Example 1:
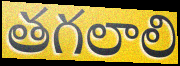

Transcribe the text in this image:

తగలాలి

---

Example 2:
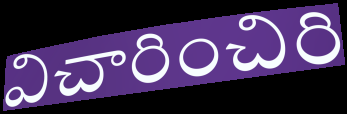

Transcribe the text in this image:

విచారించిరి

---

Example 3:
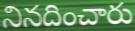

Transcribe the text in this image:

నినదించారు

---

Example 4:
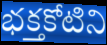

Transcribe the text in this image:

భక్తకోటిని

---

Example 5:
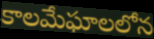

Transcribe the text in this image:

కాలమేఘాలలోన